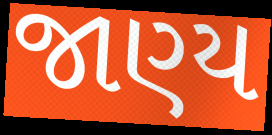
જાણ્ય